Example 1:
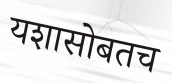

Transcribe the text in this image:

यशासोबतच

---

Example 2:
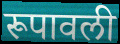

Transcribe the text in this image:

रूपावली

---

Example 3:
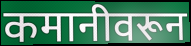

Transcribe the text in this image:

कमानीवरून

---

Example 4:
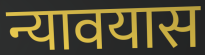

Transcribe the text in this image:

न्यावयास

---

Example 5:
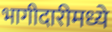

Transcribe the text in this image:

भागीदारीमध्ये